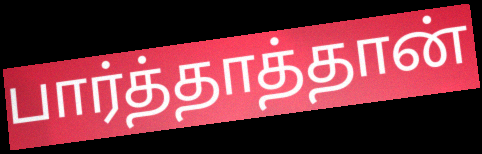
பார்த்தாத்தான்